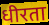
धीरता